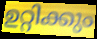
ഉറ്റിക്കും